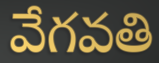
వేగవతి